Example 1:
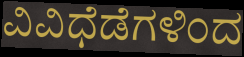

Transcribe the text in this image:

ವಿವಿಧೆಡೆಗಳಿಂದ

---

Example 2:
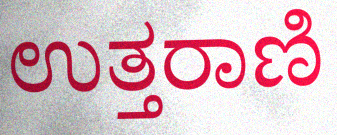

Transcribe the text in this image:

ಉತ್ತರಾಣಿ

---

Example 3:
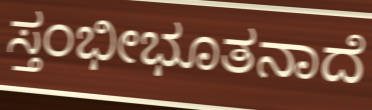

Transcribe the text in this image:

ಸ್ತಂಭೀಭೂತನಾದೆ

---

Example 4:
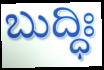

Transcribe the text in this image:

ಬುದ್ಧಿಃ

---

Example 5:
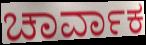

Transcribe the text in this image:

ಚಾರ್ವಾಕ